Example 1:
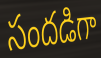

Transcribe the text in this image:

సందడిగా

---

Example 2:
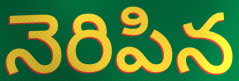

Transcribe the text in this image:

నెరిపిన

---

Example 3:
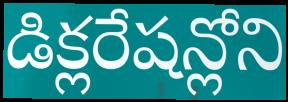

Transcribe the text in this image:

డిక్లరేషన్లోని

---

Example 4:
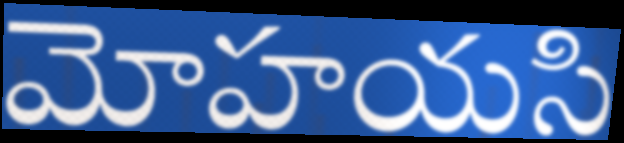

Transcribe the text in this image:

మోహయసి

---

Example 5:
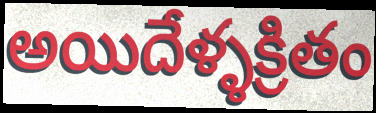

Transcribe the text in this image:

అయిదేళ్ళక్రితం